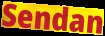
Sendan